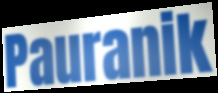
Pauranik